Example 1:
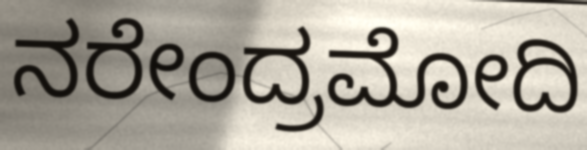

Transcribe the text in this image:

ನರೇಂದ್ರಮೋದಿ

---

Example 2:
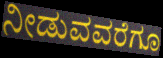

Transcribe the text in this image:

ನೀಡುವವರೆಗೂ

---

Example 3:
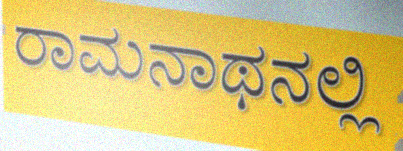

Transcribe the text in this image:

ರಾಮನಾಥನಲ್ಲಿ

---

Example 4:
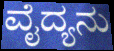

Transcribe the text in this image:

ವೈದ್ಯನು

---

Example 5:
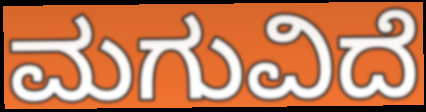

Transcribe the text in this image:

ಮಗುವಿದೆ